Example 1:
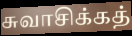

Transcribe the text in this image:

சுவாசிக்கத்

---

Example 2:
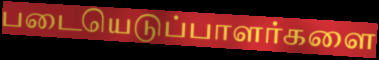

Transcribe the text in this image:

படையெடுப்பாளர்களை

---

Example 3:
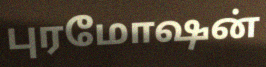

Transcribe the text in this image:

புரமோஷன்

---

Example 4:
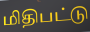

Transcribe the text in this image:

மிதிபட்டு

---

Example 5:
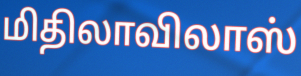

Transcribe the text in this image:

மிதிலாவிலாஸ்